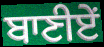
ਬਾਣੀਏਂ